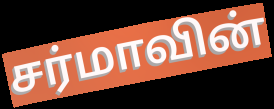
சர்மாவின்